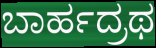
ಬಾರ್ಹದ್ರಥ